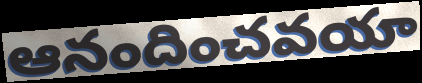
ఆనందించవయా